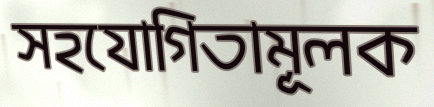
সহযোগিতামূলক